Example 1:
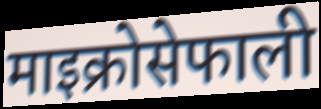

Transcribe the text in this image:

माइक्रोसेफाली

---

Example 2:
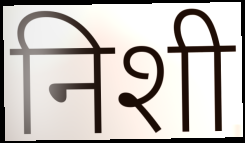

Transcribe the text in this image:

निशी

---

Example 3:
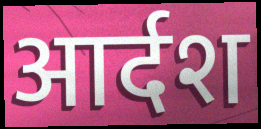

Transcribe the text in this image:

आर्दश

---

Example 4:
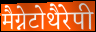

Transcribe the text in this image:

मैग्नेटोथैरेपी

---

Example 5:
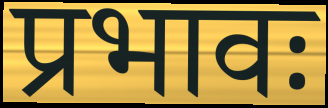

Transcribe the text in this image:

प्रभावः